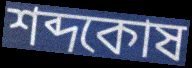
শব্দকোষ